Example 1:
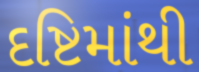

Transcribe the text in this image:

દષ્ટિમાંથી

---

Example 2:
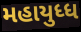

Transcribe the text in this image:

મહાયુધ્ધ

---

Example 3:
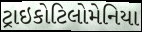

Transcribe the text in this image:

ટ્રાઇકોટિલોમેનિયા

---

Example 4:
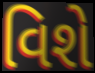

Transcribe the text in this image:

વિશે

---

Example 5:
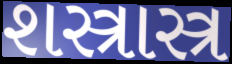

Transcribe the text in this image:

શસ્ત્રાસ્ત્ર